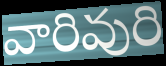
వారివురి